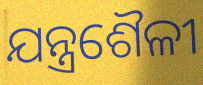
ଯନ୍ତ୍ରଶୈଳୀ